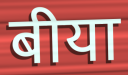
बीया